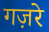
गज़रे